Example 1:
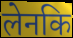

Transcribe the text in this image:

लेनकि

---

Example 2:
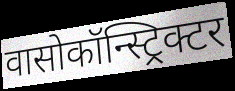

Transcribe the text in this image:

वासोकॉन्स्ट्रिक्टर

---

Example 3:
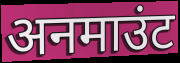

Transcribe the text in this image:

अनमाउंट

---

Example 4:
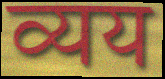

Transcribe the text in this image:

व्यय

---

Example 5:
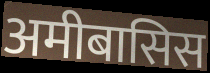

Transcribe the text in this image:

अमीबासिस